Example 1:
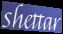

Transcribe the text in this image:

shettar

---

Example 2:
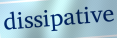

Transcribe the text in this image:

dissipative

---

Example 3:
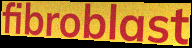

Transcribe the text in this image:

fibroblast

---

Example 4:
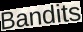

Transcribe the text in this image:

Bandits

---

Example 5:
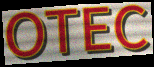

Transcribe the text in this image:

OTEC